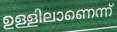
ഉള്ളിലാണെന്ന്